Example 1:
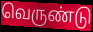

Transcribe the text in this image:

வெருண்டு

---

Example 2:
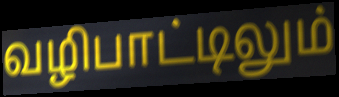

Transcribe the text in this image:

வழிபாட்டிலும்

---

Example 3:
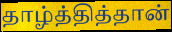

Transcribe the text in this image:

தாழ்த்தித்தான்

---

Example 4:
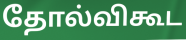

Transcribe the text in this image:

தோல்விகூட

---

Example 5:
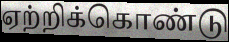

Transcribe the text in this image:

ஏற்றிக்கொண்டு